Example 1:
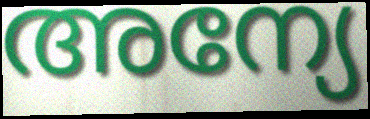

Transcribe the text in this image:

അന്യേ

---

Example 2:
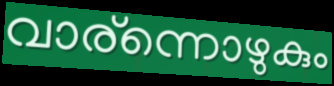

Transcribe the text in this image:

വാര്ന്നൊഴുകും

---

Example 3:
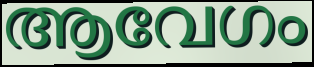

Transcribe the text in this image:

ആവേഗം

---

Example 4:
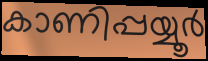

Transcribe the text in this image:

കാണിപ്പയ്യൂർ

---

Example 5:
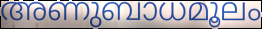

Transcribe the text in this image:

അണുബാധമൂലം